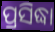
ପ୍ରସିଦ୍ଧା